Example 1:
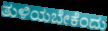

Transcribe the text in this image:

ತುಳಿಯಬೇಕೆಂದು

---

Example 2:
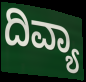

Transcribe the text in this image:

ದಿವ್ಯಾ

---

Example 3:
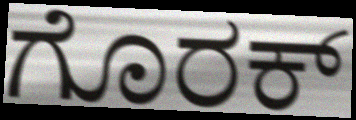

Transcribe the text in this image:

ಗೊರಕ್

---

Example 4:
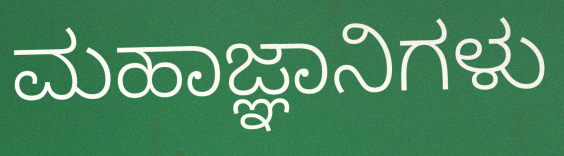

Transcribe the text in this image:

ಮಹಾಜ್ಞಾನಿಗಳು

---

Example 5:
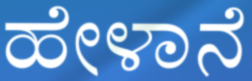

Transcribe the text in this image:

ಹೇಳಾನೆ